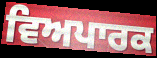
ਵਿਅਪਾਰਕ